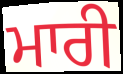
ਮਾਰੀ